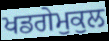
ਖਡਗੇਮੁਕੁਲ